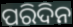
ପରିଦିନ